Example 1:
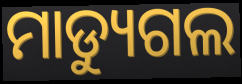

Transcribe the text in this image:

ମାଡ୍ୟୁଗଲ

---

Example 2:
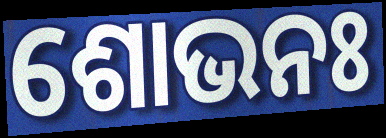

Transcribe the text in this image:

ଶୋଭନଃ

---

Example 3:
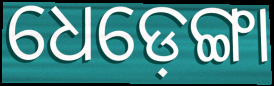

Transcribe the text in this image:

ଧେଡ଼େଙ୍ଗା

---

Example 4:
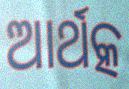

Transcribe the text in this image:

ଆର୍ଥତ୍କ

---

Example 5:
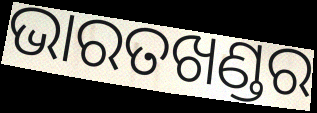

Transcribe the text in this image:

ଭାରତଖଣ୍ଡର